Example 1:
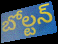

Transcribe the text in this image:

బోల్టన్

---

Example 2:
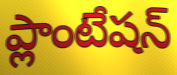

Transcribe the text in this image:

ప్లాంటేషన్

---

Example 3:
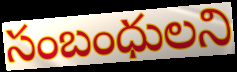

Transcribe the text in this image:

సంబంధులని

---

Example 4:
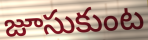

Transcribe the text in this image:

జూసుకుంట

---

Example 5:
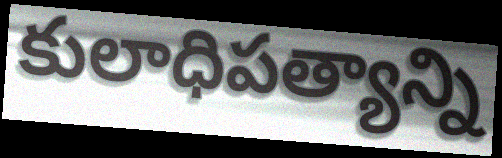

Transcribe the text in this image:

కులాధిపత్యాన్ని